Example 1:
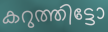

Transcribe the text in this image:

കറുത്തിട്ടോ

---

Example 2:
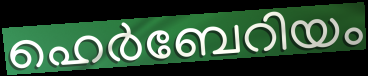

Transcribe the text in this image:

ഹെർബേറിയം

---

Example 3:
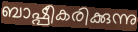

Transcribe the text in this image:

ബാഷ്പീകരിക്കുന്നു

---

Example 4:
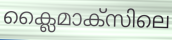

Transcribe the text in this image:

ക്ലൈമാക്സിലെ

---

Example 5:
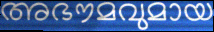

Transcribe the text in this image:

അഭൗമവുമായ